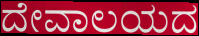
ದೇವಾಲಯದ